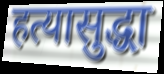
हत्यासुद्धा